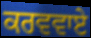
ਕਰਵਵਾਏ